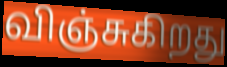
விஞ்சுகிறது